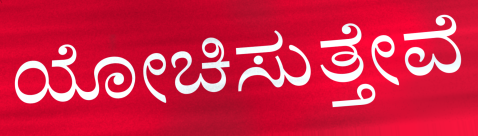
ಯೋಚಿಸುತ್ತೇವೆ